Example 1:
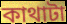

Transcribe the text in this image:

কাথাটা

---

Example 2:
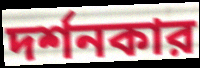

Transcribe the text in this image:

দর্শনকার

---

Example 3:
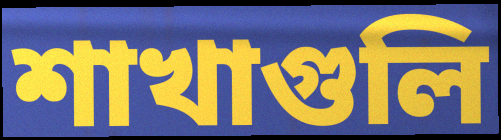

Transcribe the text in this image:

শাখাগুলি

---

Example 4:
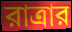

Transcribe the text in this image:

রাত্রার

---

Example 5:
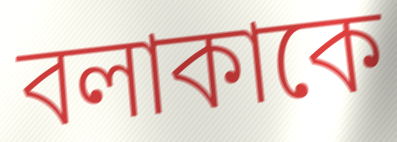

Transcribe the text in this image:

বলাকাকে